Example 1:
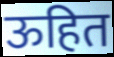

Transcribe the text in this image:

ऊहित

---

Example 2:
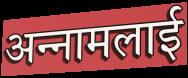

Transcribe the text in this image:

अन्‍नामलाई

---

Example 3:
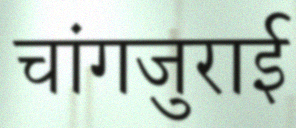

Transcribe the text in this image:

चांगजुराई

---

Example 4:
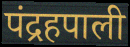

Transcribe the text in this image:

पंद्रहपाली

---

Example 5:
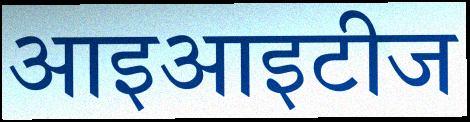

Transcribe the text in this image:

आइआइटीज